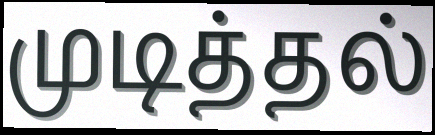
முடித்தல்